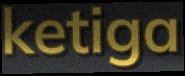
ketiga